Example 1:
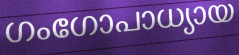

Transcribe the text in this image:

ഗംഗോപാധ്യായ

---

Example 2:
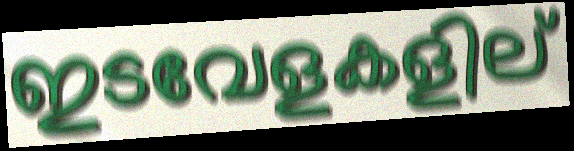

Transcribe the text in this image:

ഇടവേളകളില്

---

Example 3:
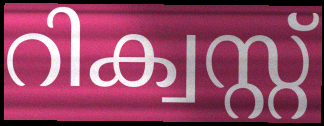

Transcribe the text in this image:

റിക്വസ്റ്റ്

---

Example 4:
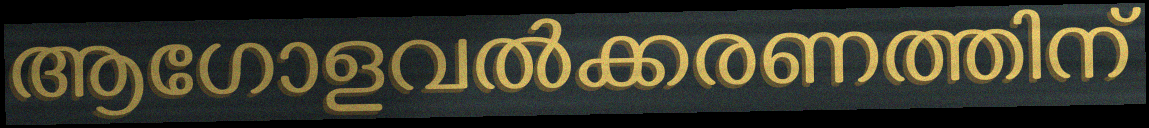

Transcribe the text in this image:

ആഗോളവൽക്കരണത്തിന്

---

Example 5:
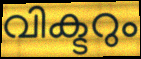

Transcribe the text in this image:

വിക്ടറും